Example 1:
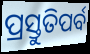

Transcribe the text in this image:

ପ୍ରସ୍ତୁତିପର୍ବ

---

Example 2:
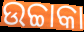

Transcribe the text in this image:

ଉଚ୍ଚାକା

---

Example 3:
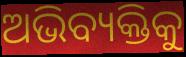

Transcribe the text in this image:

ଅଭିବ୍ୟକ୍ତିକୁ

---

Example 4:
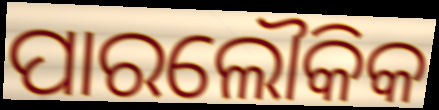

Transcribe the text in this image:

ପାରଲୌକିକ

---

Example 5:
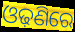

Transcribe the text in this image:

ଓଢ଼ଣିରେ